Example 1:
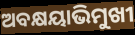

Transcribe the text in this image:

ଅବକ୍ଷୟାଭିମୁଖୀ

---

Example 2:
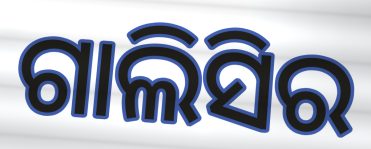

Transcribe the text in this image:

ଗାଲିସିର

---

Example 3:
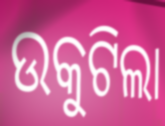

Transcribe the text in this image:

ଉକୁଟିଲା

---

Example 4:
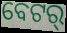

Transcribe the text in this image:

ବେଟର୍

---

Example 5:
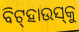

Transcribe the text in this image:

ବିଟ୍‌ହାଉସ୍‌କୁ